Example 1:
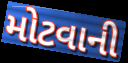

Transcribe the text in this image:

મોટવાની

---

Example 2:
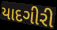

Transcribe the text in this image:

યાદગીરી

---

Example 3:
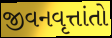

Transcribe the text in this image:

જીવનવૃત્તાંતો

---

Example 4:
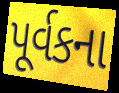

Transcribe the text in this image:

પૂર્વકના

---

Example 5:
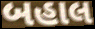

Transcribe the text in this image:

બહાલ